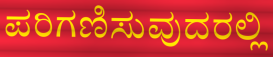
ಪರಿಗಣಿಸುವುದರಲ್ಲಿ